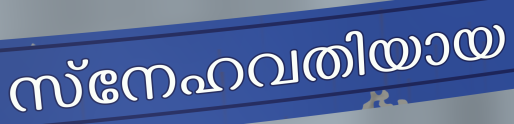
സ്‌നേഹവതിയായ